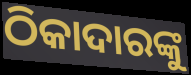
ଠିକାଦାରଙ୍କୁ